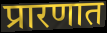
प्रारणात